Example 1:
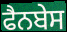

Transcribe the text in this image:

ਫੈਨਬੇਸ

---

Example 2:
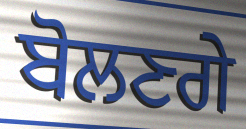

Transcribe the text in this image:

ਬੋਲਣਗੇ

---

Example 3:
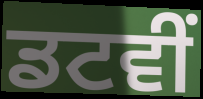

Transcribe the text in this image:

ਡਟਵੀਂ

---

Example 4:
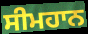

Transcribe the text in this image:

ਸੀਮਹਾਨ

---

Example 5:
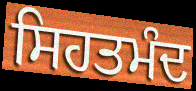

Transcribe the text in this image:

ਸਿਹਤਮੰਦ